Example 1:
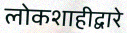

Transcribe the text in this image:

लोकशाहीद्वारे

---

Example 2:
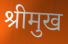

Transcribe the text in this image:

श्रीमुख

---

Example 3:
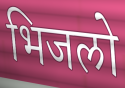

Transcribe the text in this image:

भिजलो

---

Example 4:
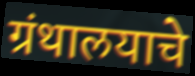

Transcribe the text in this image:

ग्रंथालयाचे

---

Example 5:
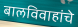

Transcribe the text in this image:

बालविवाहांचे